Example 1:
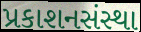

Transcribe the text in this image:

પ્રકાશનસંસ્થા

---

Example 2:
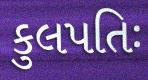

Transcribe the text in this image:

કુલપતિઃ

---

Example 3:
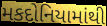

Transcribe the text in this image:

મકદોનિયામાંથી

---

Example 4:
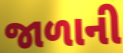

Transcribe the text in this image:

જાળાની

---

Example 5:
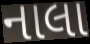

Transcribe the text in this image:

નાલા